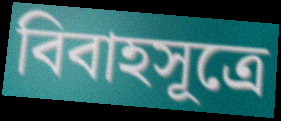
বিবাহসূত্রে